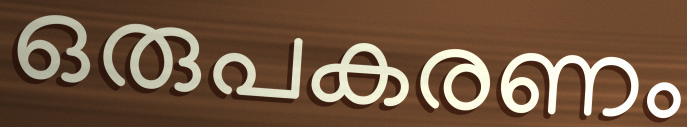
ഒരുപകരണം